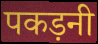
पकड़नी